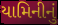
યામિનીનું